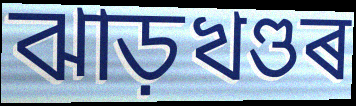
ঝাড়খণ্ডৰ